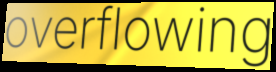
overflowing